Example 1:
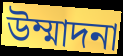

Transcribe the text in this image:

উম্মাদনা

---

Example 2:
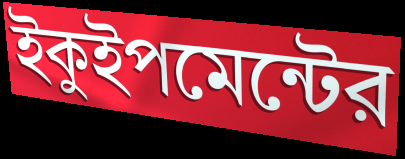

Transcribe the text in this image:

ইকুইপমেন্টের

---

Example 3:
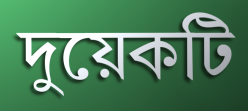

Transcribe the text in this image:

দুয়েকটি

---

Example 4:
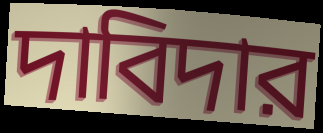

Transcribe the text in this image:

দাবিদার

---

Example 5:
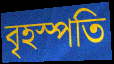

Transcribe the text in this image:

বৃহস্পতি